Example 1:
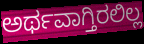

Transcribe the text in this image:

ಅರ್ಥವಾಗ್ತಿರಲಿಲ್ಲ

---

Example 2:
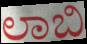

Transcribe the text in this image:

ಲಾಬಿ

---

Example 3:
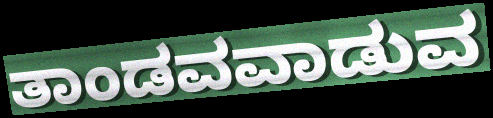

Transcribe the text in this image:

ತಾಂಡವವಾಡುವ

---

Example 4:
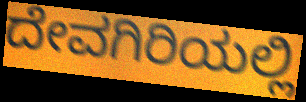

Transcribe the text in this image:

ದೇವಗಿರಿಯಲ್ಲಿ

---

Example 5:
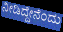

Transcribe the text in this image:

ನೀಡಿದ್ದೇನೆಂದು